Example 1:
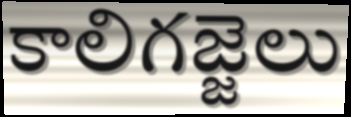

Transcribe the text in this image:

కాలిగజ్జెలు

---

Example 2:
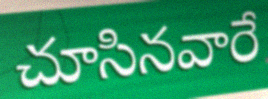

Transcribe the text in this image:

చూసినవారే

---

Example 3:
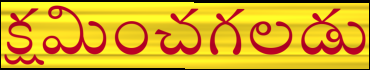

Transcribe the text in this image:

క్షమించగలడు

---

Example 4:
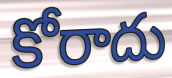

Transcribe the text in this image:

కోరాదు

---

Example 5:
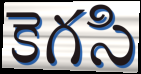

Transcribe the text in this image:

కెగసి